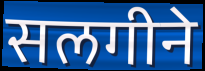
सलगीने